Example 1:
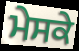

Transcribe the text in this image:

ਮੇਸਕੇ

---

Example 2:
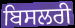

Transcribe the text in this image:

ਬਿਸਲਰੀ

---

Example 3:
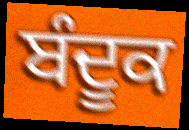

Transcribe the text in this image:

ਬੰਦੂਕ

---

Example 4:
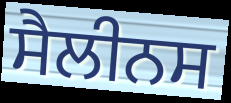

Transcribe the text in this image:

ਸੈਲੀਨਸ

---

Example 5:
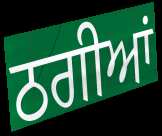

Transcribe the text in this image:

ਠਗੀਆਂ